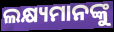
ଲକ୍ଷ୍ୟମାନଙ୍କୁ